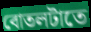
বোতলটাতে